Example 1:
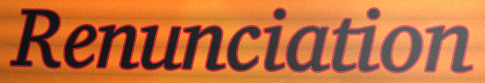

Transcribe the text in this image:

Renunciation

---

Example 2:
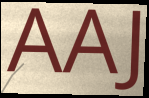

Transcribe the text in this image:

AAJ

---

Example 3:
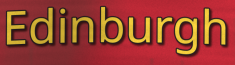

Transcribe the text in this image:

Edinburgh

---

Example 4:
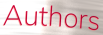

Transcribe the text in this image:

Authors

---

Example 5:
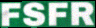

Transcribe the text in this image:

FSFR